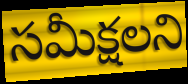
సమీక్షలని